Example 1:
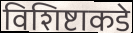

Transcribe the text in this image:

विशिष्टाकडे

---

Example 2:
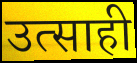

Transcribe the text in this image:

उत्साही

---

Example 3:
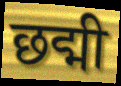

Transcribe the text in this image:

छद्मी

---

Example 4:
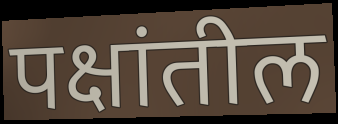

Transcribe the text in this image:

पक्षांतील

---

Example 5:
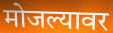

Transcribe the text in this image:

मोजल्यावर